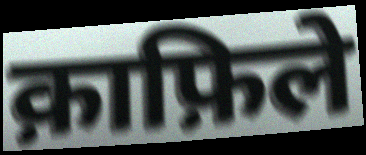
क़ाफ़िले